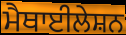
ਮੈਥਾਈਲੇਸ਼ਨ